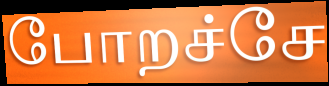
போறச்சே